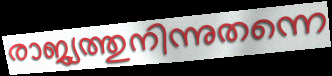
രാജ്യത്തുനിന്നുതന്നെ